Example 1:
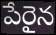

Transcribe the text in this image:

పేరైన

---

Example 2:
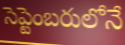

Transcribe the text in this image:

సెప్టెంబరులోనే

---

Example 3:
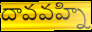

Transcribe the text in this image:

దావవహ్ని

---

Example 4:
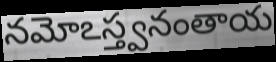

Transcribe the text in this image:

నమోఽస్త్వనంతాయ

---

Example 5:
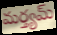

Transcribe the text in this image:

మర్త్యమ్